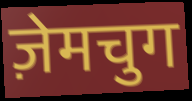
ज़ेमचुग